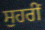
ਸੁਹਰੀਂ